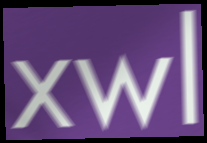
xwl